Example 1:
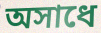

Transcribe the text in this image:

অসাধে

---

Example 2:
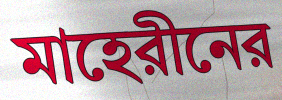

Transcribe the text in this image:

মাহেরীনের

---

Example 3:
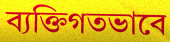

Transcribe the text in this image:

ব্যক্তিগতভাবে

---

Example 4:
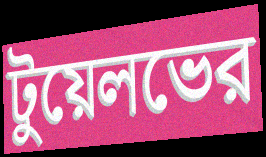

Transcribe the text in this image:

টুয়েলভের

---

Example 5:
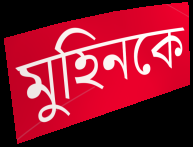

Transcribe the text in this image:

মুহিনকে